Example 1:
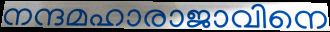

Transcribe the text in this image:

നന്ദമഹാരാജാവിനെ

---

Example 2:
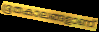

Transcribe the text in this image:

ഭൂതകാലങ്ങളാണ്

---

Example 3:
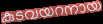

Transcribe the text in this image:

കുടവയറനായ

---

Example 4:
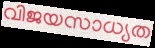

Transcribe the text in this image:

വിജയസാധ്യത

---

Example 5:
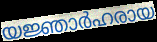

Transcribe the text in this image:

യജ്ഞാർഹരായ